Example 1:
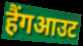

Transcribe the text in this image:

हैंगआउट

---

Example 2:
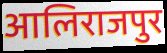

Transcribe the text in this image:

आलिराजपुर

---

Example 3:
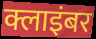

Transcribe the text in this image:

क्लाइंबर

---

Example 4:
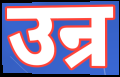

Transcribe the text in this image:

उन्र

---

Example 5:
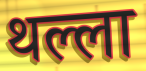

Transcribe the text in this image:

थल्ला